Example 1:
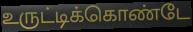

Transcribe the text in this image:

உருட்டிக்கொண்டே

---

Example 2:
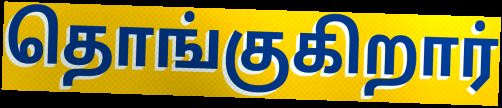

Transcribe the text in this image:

தொங்குகிறார்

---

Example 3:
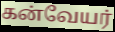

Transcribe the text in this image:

கன்வேயர்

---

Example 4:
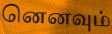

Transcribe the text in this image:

னெனவும்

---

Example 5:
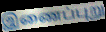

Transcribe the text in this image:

இணைப்புறு